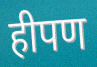
हीपण